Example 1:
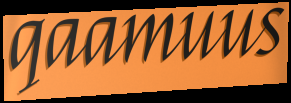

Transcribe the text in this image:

qaamuus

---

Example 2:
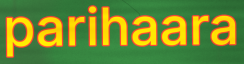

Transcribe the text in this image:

parihaara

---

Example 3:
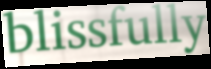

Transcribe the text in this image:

blissfully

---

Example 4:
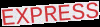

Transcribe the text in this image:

EXPRESS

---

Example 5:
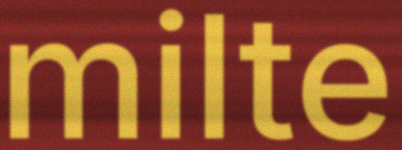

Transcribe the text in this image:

milte